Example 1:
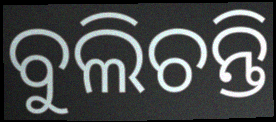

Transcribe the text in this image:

ବୁଲିଚନ୍ତି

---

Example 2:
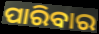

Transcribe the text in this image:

ପାରିବାର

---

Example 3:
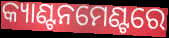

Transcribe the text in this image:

କ୍ୟାଣ୍ଟନମେଣ୍ଟରେ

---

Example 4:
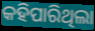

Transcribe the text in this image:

କହିପାରିଥିଲା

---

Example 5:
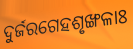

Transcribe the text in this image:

ଦୁର୍ଜରଗେହଶୃଙ୍ଖଳାଃ